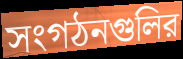
সংগঠনগুলির